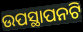
ଉପସ୍ଥାପନଟି